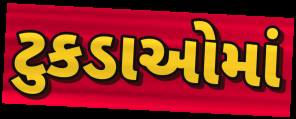
ટુકડાઓમાં